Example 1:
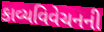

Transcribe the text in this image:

કાવ્યવિવેચનની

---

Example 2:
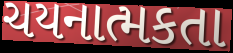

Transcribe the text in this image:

ચયનાત્મકતા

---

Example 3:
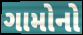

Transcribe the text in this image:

ગામોનો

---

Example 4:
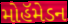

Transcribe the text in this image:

મોહૅમેડન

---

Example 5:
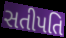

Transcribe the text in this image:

સતીપતિ